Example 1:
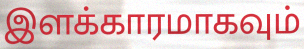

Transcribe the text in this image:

இளக்காரமாகவும்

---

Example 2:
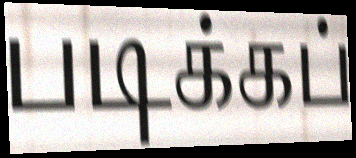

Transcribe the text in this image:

படிக்கப்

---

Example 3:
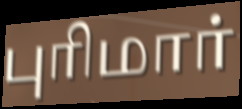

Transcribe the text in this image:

புரிமார்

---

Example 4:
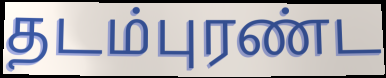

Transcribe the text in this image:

தடம்புரண்ட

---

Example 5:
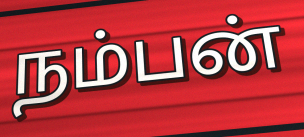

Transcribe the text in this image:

நம்பன்